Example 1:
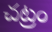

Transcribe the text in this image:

చట్రం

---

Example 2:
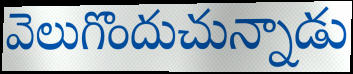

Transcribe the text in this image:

వెలుగొందుచున్నాడు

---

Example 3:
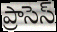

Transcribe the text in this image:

ప్రాసెస్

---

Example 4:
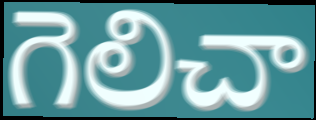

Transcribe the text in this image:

గెలిచా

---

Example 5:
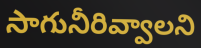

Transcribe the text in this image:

సాగునీరివ్వాలని